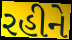
રહીને